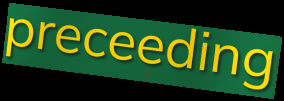
preceeding